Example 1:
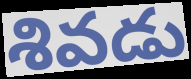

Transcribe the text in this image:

శివడు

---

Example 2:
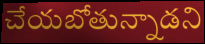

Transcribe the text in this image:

చేయబోతున్నాడని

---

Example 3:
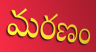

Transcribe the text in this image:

మరణం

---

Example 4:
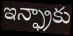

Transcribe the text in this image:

ఇన్ఫ్రాకు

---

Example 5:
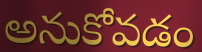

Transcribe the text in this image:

అనుకోవడం